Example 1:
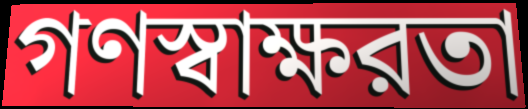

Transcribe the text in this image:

গণস্বাক্ষরতা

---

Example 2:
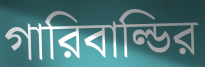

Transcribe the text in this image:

গারিবাল্ডির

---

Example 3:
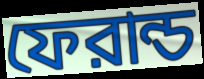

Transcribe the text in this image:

ফেরান্ড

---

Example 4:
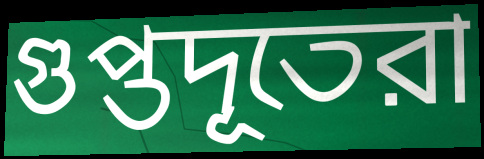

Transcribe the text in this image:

গুপ্তদূতেরা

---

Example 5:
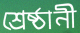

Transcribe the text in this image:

শ্রেষ্ঠানী